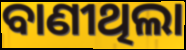
ବାଣୀଥିଲା